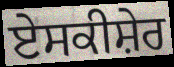
ਏਸਕੀਸ਼ੇਰ